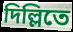
দিল্লিতে